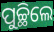
ପୁଚ୍ଛିଲେ